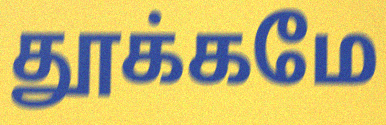
தூக்கமே